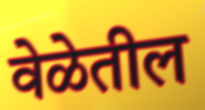
वेळेतील